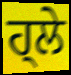
ਹ੍ਲੇ